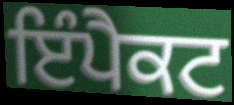
ਇੰਪੈਕਟ